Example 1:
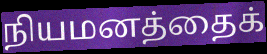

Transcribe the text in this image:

நியமனத்தைக்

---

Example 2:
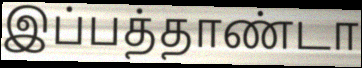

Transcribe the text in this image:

இப்பத்தாண்டா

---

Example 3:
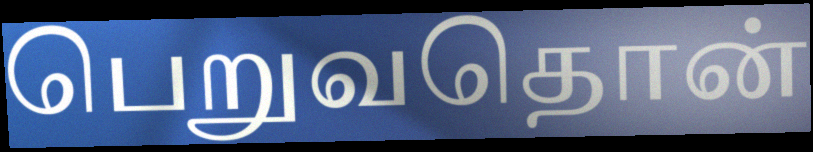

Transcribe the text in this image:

பெறுவதொன்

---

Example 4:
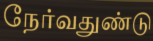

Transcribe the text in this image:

நேர்வதுண்டு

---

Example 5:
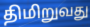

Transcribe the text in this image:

திமிறுவது